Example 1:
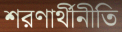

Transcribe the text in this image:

শরণার্থীনীতি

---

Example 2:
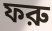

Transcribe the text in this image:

ফরু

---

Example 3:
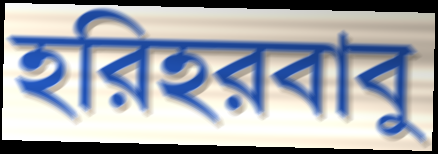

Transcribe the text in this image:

হরিহরবাবু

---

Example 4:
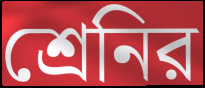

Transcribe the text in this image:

শ্রেনির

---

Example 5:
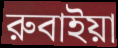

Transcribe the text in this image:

রুবাইয়া